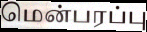
மென்பரப்பு